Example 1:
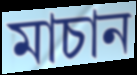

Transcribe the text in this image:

মাচান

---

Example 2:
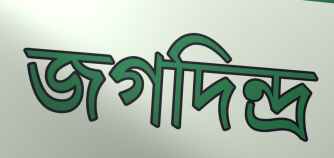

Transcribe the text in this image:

জগদিন্দ্র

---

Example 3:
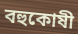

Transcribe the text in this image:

বহুকোষী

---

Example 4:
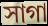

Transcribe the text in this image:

সাগা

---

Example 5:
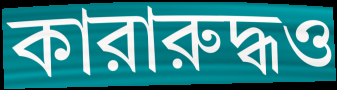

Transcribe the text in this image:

কারারুদ্ধও